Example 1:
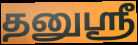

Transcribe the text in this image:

தனுஸ்ரீ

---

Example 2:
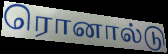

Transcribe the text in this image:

ரொனால்டு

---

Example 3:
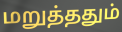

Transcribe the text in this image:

மறுத்ததும்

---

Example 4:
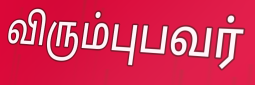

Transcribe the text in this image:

விரும்புபவர்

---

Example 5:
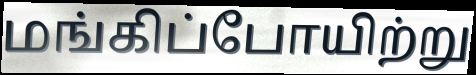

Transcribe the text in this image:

மங்கிப்போயிற்று